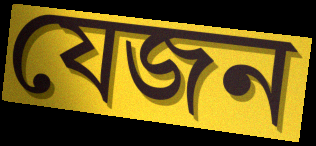
যেজন